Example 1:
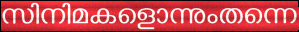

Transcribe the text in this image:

സിനിമകളൊന്നുംതന്നെ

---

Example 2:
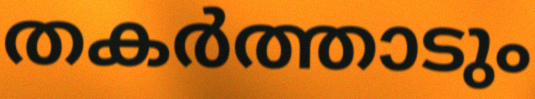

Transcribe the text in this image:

തകർത്താടും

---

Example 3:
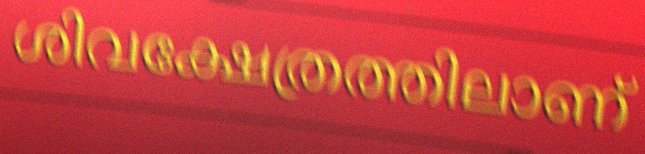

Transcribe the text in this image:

ശിവക്ഷേത്രത്തിലാണ്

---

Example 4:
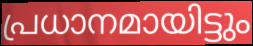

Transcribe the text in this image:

പ്രധാനമായിട്ടും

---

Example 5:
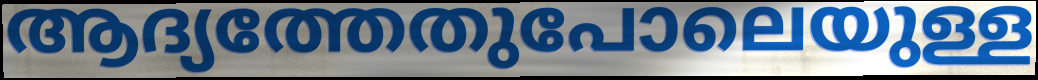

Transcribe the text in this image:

ആദ്യത്തേതുപോലെയുള്ള